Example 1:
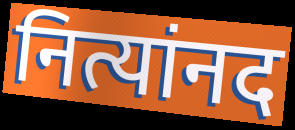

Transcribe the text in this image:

नित्यांनद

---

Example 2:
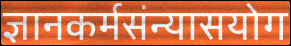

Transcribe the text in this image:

ज्ञानकर्मसंन्यासयोग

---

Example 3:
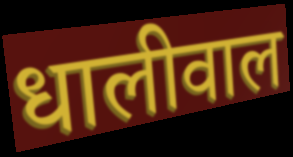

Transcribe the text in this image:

धालीवाल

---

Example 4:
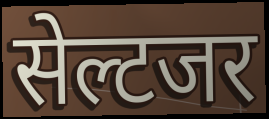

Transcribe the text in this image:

सेल्टजर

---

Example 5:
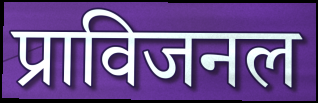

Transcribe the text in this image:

प्राविजनल